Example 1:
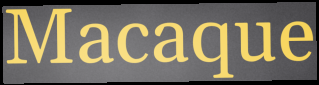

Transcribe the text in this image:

Macaque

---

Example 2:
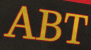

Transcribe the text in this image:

ABT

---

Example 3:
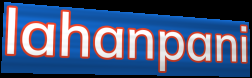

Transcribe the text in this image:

lahanpani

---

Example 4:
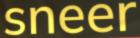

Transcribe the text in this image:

sneer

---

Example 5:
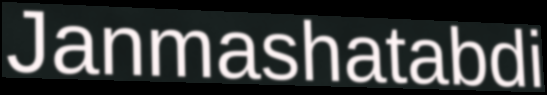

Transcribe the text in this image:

Janmashatabdi